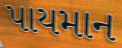
પાયમાન